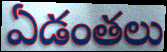
ఏడంతలు